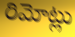
రిమోట్లు